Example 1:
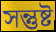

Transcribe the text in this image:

সন্তুষ্ট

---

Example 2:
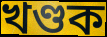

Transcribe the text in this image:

খণ্ডক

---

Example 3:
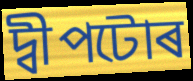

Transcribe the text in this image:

দ্বীপটোৰ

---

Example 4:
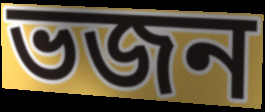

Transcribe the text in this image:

ভজন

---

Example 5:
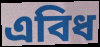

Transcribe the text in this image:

এবিধ